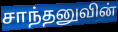
சாந்தனுவின்